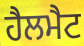
ਹੈਲਮੈਟ